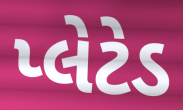
પ્લેટેડ